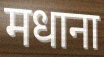
मधाना